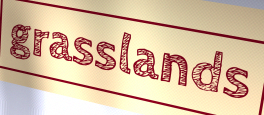
grasslands